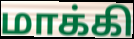
மாக்கி